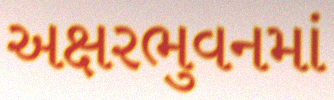
અક્ષરભુવનમાં